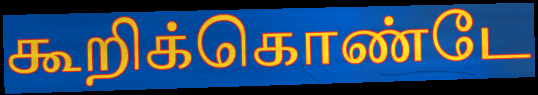
கூறிக்கொண்டே